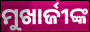
ମୁଖାର୍ଜୀଙ୍କ